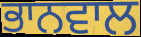
ਭਾਨਵਾਲ